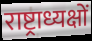
राष्ट्राध्यक्षों